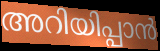
അറിയിപ്പാൻ